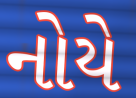
નોયે